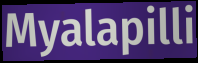
Myalapilli